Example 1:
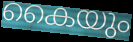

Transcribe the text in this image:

കൈയും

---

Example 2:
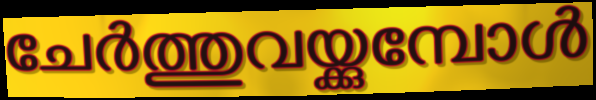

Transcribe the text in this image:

ചേർത്തുവയ്ക്കുമ്പോൾ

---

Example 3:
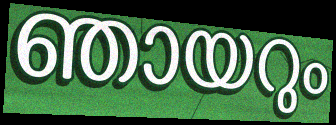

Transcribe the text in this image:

ഞായറും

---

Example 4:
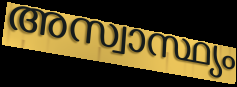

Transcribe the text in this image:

അസ്വാസ്ഥ്യം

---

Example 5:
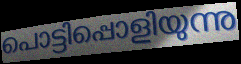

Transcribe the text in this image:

പൊട്ടിപ്പൊളിയുന്നു